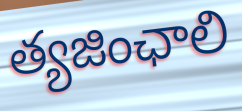
త్యజింఛాలి